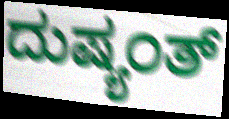
ದುಷ್ಯಂತ್